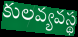
కులవ్యవస్థ